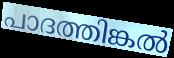
പാദത്തിങ്കൽ